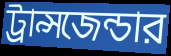
ট্রান্সজেন্ডার